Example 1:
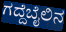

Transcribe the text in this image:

ಗದ್ದೆಬೈಲಿನ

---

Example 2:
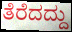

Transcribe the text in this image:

ತೆರೆದದ್ದು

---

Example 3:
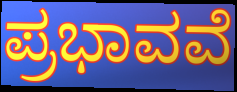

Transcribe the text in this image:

ಪ್ರಭಾವವೆ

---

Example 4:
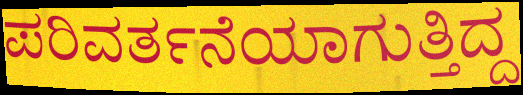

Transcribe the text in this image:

ಪರಿವರ್ತನೆಯಾಗುತ್ತಿದ್ದ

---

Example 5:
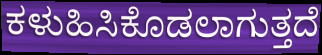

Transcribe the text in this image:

ಕಳುಹಿಸಿಕೊಡಲಾಗುತ್ತದೆ